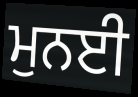
ਮੁਨਈ